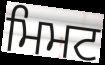
ਮਿਮਟ